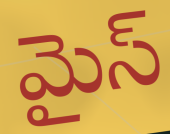
మైస్